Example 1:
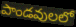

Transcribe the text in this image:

పాండవులలో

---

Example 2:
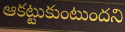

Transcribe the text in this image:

ఆకట్టుకుంటుందని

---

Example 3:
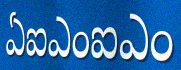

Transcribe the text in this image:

ఏఐఎంఐఎం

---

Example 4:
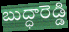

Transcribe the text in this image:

బుద్ధారెడ్డి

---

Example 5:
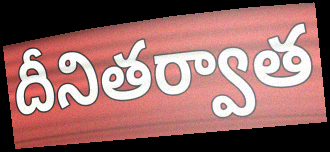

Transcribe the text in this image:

దీనితర్వాత